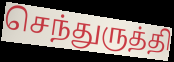
செந்துருத்தி